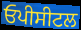
ਓਪੀਸੀਟਲ